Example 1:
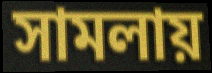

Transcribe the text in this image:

সামলায়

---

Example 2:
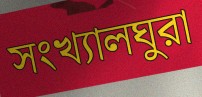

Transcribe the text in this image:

সংখ্যালঘুরা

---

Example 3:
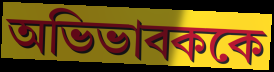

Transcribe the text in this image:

অভিভাবককে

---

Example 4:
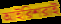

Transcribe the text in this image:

আইরিশরাই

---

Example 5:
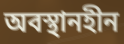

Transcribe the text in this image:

অবস্থানহীন